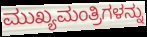
ಮುಖ್ಯಮಂತ್ರಿಗಳನ್ನು